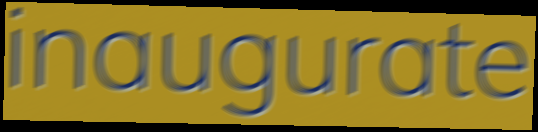
inaugurate